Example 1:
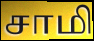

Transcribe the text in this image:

சாமி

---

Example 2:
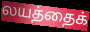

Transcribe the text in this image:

லயத்தைக்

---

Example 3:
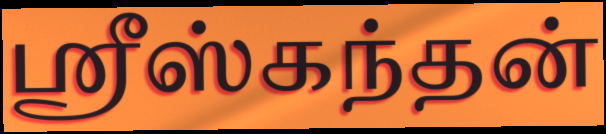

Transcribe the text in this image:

ஸ்ரீஸ்கந்தன்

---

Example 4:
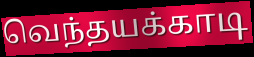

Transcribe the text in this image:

வெந்தயக்காடி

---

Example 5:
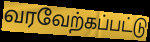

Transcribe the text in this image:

வரவேற்கப்பட்டு